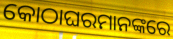
କୋଠାଘରମାନଙ୍କରେ